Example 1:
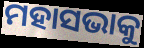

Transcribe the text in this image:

ମହାସଭାକୁ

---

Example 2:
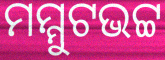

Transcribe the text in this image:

ମମ୍ମୁଟଭଟ୍ଟ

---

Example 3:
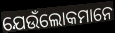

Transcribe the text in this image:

ଯେଉଁଲୋକମାନେ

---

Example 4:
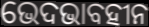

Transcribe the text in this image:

ଭେଦଭାବହୀନ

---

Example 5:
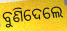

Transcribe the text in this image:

ବୁଣିଦେଲେ